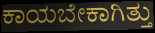
ಕಾಯಬೇಕಾಗಿತ್ತು